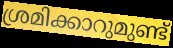
ശ്രമിക്കാറുമുണ്ട്